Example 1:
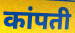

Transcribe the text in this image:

कांपती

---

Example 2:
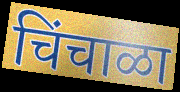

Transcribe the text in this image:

चिंचाळा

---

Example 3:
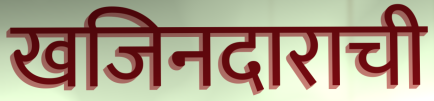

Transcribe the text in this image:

खजिनदाराची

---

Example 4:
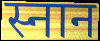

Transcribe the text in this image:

स्नान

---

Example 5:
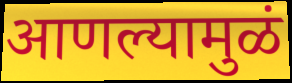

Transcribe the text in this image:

आणल्यामुळं